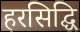
हरसिद्घि